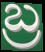
బ్ర